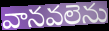
వానవలెను